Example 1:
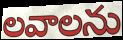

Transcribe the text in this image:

లవాలను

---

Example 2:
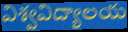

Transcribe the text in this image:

విశ్వవిద్యాలయ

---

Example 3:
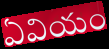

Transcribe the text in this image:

ఏవియం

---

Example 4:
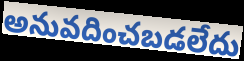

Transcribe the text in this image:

అనువదించబడలేదు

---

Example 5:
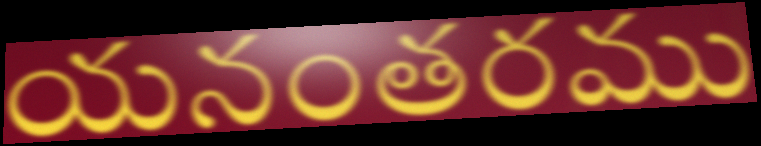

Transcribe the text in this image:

యనంతరము